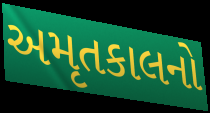
અમૃતકાલનો